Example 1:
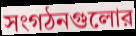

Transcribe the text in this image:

সংগঠনগুলোর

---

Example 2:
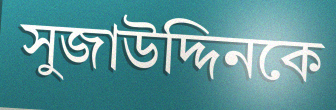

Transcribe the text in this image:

সুজাউদ্দিনকে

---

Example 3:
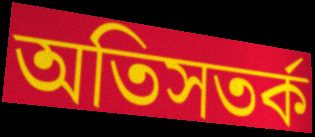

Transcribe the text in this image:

অতিসতর্ক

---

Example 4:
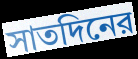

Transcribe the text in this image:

সাতদিনের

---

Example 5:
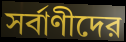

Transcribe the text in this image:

সর্বাণীদের